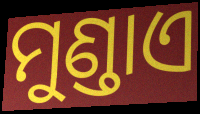
ମୁଣ୍ଡାଏ